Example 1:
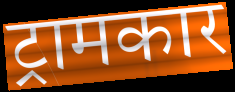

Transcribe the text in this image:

ट्रामकार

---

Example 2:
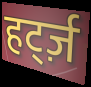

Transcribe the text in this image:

हर्ट्ज़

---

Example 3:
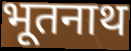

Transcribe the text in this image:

भूतनाथ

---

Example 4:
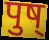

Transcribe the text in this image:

पुष्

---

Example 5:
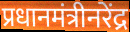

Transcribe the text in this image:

प्रधानमंत्रीनरेंद्र